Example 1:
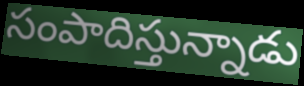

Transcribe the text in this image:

సంపాదిస్తున్నాడు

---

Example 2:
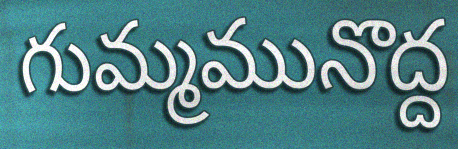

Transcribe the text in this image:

గుమ్మమునొద్ద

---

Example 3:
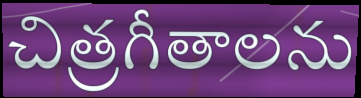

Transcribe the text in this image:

చిత్రగీతాలను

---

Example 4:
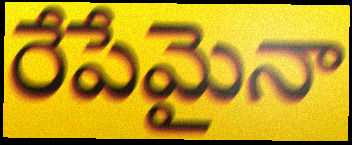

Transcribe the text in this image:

రేపేమైనా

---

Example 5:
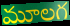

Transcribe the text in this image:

మూలగ